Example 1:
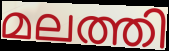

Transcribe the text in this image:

മലത്തി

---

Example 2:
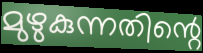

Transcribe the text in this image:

മുഴുകുന്നതിന്റെ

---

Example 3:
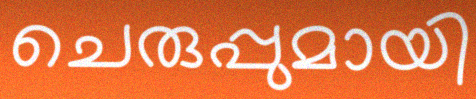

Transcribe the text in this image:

ചെരുപ്പുമായി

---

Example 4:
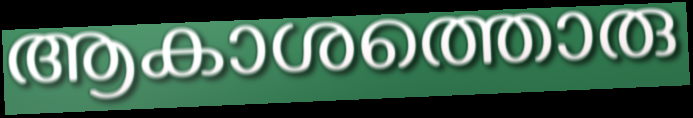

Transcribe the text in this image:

ആകാശത്തൊരു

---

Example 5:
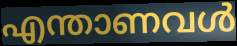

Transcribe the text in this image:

എന്താണവൾ